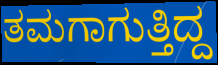
ತಮಗಾಗುತ್ತಿದ್ದ